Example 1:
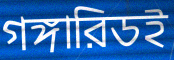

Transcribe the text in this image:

গঙ্গারিডই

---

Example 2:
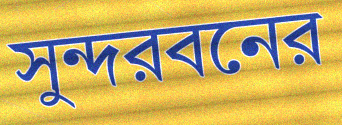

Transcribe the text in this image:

সুন্দরবনের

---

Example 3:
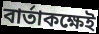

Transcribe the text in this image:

বার্তাকক্ষেই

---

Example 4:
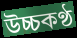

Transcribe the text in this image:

উচ্চকণ্ঠ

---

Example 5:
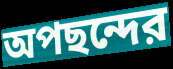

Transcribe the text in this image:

অপছন্দের